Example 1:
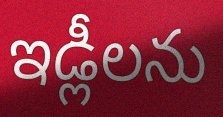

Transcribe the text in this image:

ఇడ్లీలను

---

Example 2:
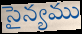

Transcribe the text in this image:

సైన్యము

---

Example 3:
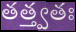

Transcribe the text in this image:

తత్త్వతః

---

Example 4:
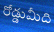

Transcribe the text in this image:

రోడ్డుమీది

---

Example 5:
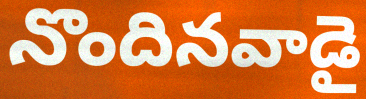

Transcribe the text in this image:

నొందినవాడై